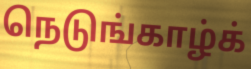
நெடுங்காழ்க்